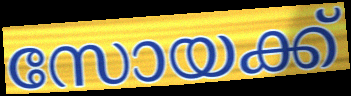
സോയക്ക്